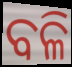
ବଳି